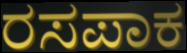
ರಸಪಾಕ